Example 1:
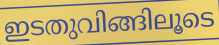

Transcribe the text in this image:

ഇടതുവിങ്ങിലൂടെ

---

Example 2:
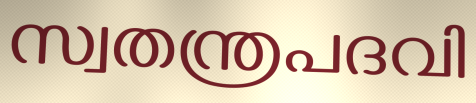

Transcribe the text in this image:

സ്വതന്ത്രപദവി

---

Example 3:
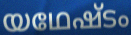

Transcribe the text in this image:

യഥേഷ്ടം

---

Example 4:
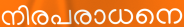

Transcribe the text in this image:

നിരപരാധനെ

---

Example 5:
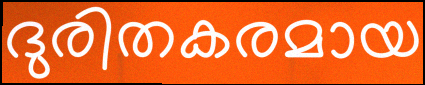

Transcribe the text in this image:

ദുരിതകരമായ